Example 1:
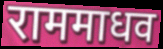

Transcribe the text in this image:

राममाधव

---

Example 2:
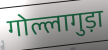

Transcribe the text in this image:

गोल्लागुड़ा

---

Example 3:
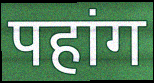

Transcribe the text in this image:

पहांग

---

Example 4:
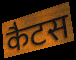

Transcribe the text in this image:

कैटस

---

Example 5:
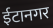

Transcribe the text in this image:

ईटानगर